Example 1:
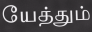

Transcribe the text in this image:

யேத்தும்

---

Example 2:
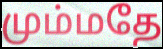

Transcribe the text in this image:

மும்மதே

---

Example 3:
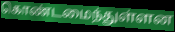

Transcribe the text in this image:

கொண்டமைந்துள்ளன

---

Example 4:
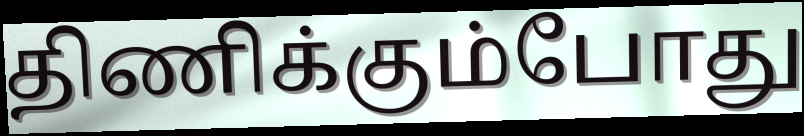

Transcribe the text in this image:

திணிக்கும்போது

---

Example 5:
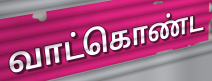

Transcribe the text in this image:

வாட்கொண்ட